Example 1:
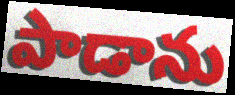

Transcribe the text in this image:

పాడాను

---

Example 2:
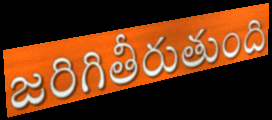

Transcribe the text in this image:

జరిగితీరుతుంది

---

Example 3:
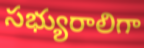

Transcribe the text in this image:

సభ్యురాలిగా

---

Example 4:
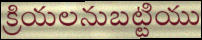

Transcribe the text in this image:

క్రియలనుబట్టియు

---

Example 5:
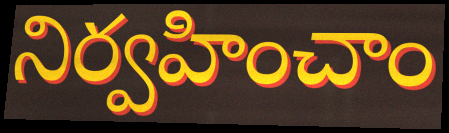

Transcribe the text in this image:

నిర్వహించాం